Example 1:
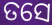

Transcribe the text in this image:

ତସେ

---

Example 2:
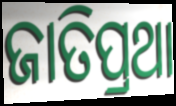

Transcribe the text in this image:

ଜାତିପ୍ରଥା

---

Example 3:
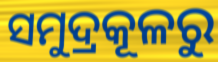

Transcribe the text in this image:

ସମୁଦ୍ରକୂଳରୁ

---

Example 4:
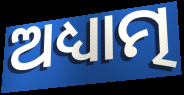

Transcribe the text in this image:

ଅଧ୍ୟାତ୍ମ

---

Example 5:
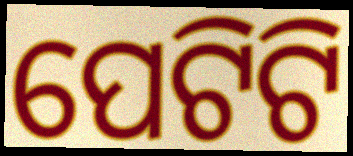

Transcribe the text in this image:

ପେଟିଟି